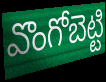
వొంగోబెట్టి